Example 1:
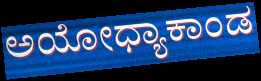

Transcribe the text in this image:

ಅಯೋಧ್ಯಾಕಾಂಡ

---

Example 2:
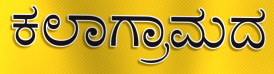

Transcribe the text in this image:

ಕಲಾಗ್ರಾಮದ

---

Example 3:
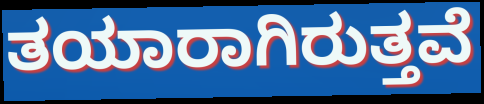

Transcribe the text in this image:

ತಯಾರಾಗಿರುತ್ತವೆ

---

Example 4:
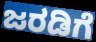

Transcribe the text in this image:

ಜರಡಿಗೆ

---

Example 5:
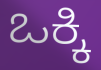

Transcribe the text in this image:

ಒಕ್ಕಿ